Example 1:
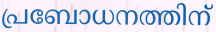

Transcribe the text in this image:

പ്രബോധനത്തിന്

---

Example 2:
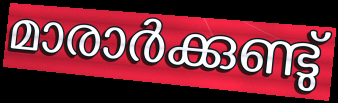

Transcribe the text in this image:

മാരാർക്കുണ്ടു്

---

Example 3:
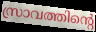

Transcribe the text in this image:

സ്രാവത്തിന്റെ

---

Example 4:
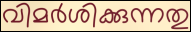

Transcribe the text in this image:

വിമർശിക്കുന്നതു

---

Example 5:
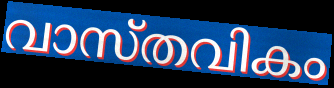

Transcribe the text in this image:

വാസ്തവികം